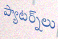
ప్యాటర్న్‌లు